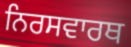
ਨਿਰਸਵਾਰਥ